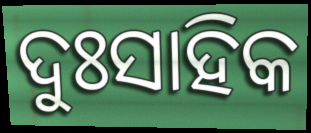
ଦୁଃସାହିକ